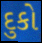
દુકો